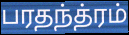
பரதந்த்ரம்